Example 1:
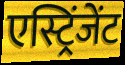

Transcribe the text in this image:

एस्ट्रिंजेंट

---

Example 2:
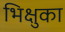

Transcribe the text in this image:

भिक्षुका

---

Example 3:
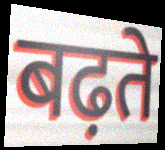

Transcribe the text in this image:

बढ़ते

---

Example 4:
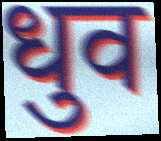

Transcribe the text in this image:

धुव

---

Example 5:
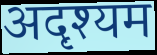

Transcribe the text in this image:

अदृश्यम